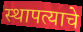
स्थापत्याचे